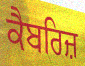
ਕੈਬਰਿਜ਼